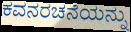
ಕವನರಚನೆಯನ್ನು